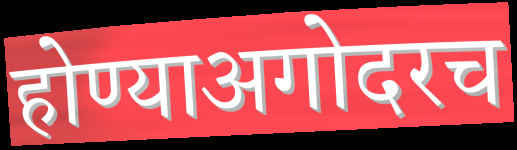
होण्याअगोदरच